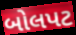
બોલપટ